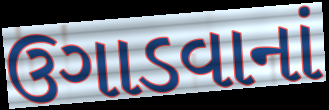
ઉગાડવાનાં